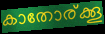
കാതോര്ക്കൂ